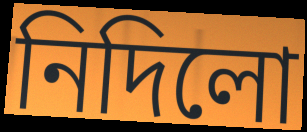
নিদিলো